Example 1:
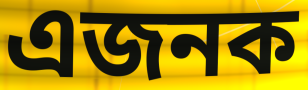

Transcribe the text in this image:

এজনক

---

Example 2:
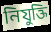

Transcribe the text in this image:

নিযুক্তি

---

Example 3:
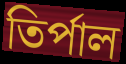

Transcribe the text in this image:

তিৰ্পাল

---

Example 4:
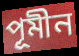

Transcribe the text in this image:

পূমীন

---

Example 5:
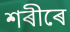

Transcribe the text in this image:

শৰীৰে